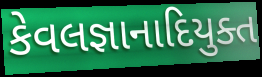
કેવલજ્ઞાનાદિયુક્ત